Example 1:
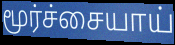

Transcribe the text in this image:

மூர்ச்சையாய்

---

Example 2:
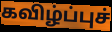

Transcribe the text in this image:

கவிழ்ப்புச்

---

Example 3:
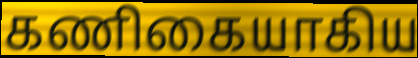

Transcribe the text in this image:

கணிகையாகிய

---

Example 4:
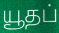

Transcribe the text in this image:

யூதப்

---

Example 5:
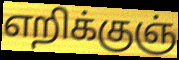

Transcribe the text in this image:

எறிக்குஞ்